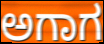
ಅಗಾಗ